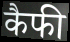
कैफी